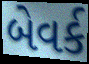
બેવર્ક